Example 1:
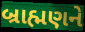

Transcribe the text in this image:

બ્રાહ્મણને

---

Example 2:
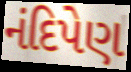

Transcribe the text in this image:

નંદિપેણ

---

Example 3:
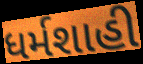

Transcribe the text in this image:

ધર્મશાહી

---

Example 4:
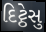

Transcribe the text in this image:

દિટ્ઠેસુ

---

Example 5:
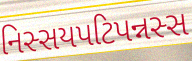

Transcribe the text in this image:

નિસ્સયપટિપન્નસ્સ